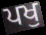
ਪਖੁ